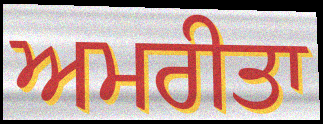
ਅਮਰੀਤਾ